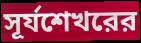
সূর্যশেখরের